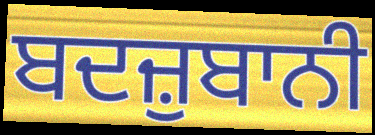
ਬਦਜ਼ੁਬਾਨੀ